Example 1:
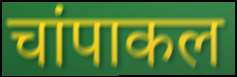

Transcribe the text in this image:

चांपाकल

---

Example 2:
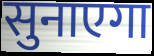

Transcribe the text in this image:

सुनाएगा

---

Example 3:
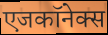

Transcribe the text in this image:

एजकॉनेक्स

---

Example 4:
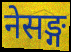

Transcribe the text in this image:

नेसङ्ग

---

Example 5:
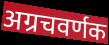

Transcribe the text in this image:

अग्रचवर्णक